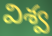
విశ్వ